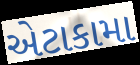
એટાકામા